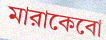
মারাকেবো